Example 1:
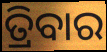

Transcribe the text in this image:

ତ୍ରିବାର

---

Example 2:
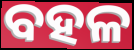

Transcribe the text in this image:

ବହଳ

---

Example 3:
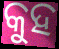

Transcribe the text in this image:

କୁହ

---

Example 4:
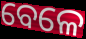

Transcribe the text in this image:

ବେଳେ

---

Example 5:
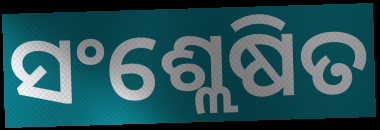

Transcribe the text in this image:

ସଂଶ୍ଲେଷିତ